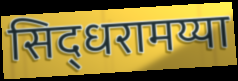
सिद्धरामय्या